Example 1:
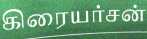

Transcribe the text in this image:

கிரையர்சன்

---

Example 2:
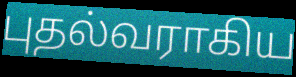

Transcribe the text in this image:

புதல்வராகிய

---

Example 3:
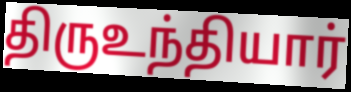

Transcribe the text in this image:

திருஉந்தியார்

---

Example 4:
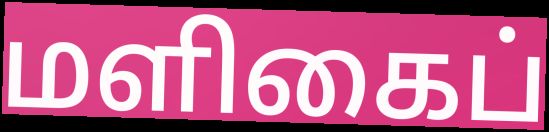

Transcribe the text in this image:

மளிகைப்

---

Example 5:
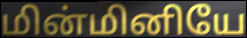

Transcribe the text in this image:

மின்மினியே